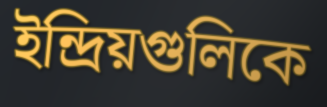
ইন্দ্রিয়গুলিকে